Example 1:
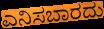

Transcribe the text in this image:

ಎನಿಸಬಾರದು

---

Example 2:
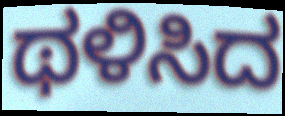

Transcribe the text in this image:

ಥಳಿಸಿದ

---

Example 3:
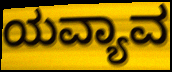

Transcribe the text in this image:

ಯವ್ಯಾವ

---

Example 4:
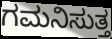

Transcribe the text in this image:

ಗಮನಿಸುತ್ತ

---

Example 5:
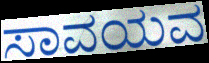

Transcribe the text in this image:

ಸಾವಯವ